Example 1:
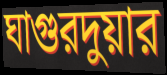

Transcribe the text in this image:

ঘাগুরদুয়ার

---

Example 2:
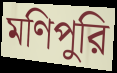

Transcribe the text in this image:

মণিপুরি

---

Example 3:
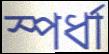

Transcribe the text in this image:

স্পর্ধা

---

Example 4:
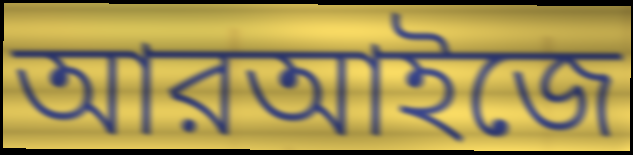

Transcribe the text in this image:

আরআইজে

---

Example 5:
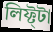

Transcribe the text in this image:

লিফ্ট্টা